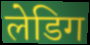
लेडिग